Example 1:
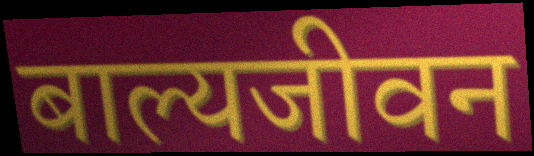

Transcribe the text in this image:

बाल्यजीवन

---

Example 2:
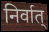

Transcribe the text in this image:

निर्वात्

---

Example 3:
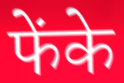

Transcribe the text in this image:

फेंके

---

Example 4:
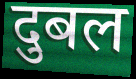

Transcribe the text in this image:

दुबल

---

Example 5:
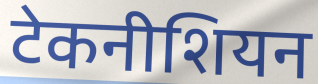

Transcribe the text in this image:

टेकनीशियन